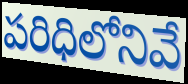
పరిధిలోనివే